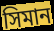
সিমান